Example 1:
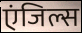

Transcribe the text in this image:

एंजिल्‍स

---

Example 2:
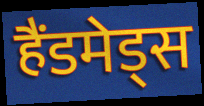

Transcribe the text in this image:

हैंडमेड्स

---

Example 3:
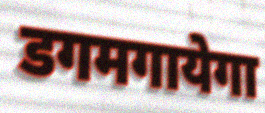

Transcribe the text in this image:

डगमगायेगा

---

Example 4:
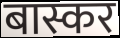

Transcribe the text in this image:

बास्कर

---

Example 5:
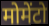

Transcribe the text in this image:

मोमेंटो